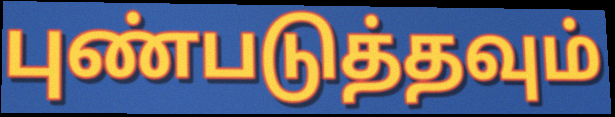
புண்படுத்தவும்